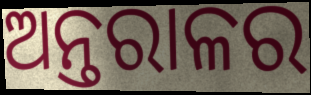
ଅନ୍ତରାଳର